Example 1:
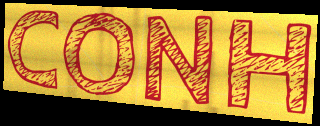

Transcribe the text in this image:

CONH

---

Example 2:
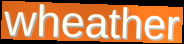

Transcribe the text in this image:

wheather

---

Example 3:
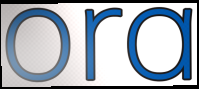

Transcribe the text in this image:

ora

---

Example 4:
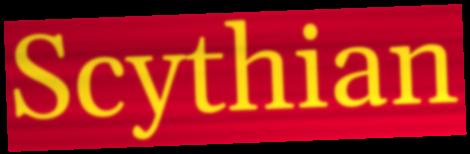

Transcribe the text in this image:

Scythian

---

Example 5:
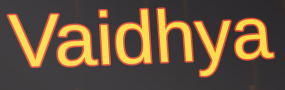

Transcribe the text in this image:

Vaidhya